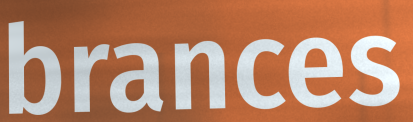
brances